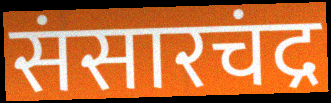
संसारचंद्र